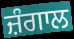
ਜ਼ੰਗਾਲ